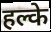
हल्के